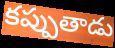
కప్పుతాడు